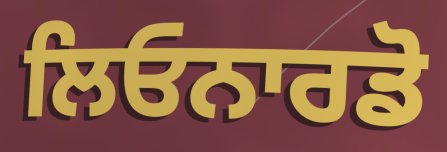
ਲਿਓਨਾਰਡੋ